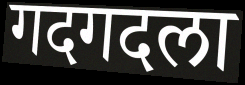
गदगदला